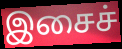
இசைச்